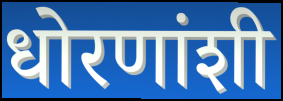
धोरणांशी